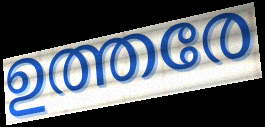
ഉത്തരേ